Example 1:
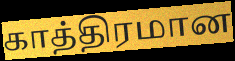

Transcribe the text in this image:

காத்திரமான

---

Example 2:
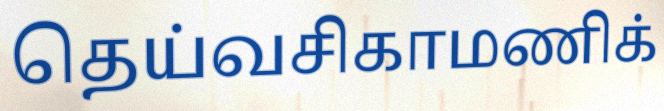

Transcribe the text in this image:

தெய்வசிகாமணிக்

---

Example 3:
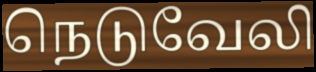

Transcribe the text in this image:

நெடுவேலி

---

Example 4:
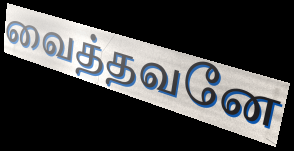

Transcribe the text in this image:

வைத்தவனே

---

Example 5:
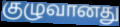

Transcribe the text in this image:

குழுவானது